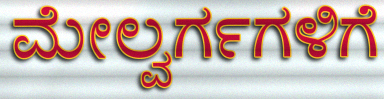
ಮೇಲ್ವರ್ಗಗಳಿಗೆ